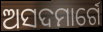
ଅସଦମାର୍ଗେ